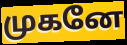
முகனே